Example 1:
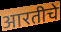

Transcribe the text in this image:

आरतीचे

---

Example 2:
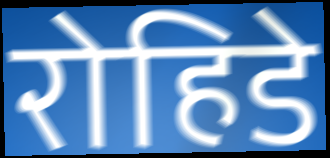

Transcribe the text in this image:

रोहिडे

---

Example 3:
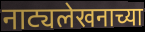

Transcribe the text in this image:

नाट्यलेखनाच्या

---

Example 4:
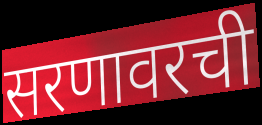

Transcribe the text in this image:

सरणावरची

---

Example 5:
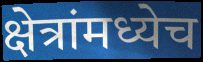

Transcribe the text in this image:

क्षेत्रांमध्येच